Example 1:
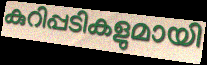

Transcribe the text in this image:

കുറിപ്പടികളുമായി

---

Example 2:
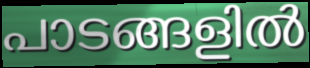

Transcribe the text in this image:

പാടങ്ങളിൽ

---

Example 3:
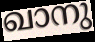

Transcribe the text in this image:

ഖാനു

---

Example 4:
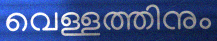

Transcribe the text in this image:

വെള്ളത്തിനും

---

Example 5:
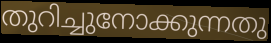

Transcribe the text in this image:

തുറിച്ചുനോക്കുന്നതു